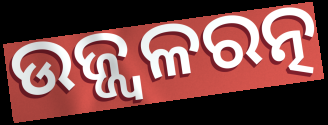
ଉଜ୍ଜ୍ୱଳରତ୍ନ